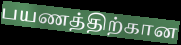
பயணத்திற்கான